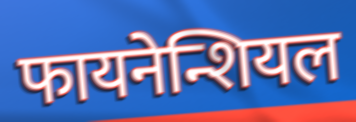
फायनेन्शियल